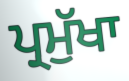
ਪ੍ਰਮੁੱਖਾ